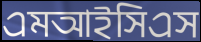
এমআইসিএস